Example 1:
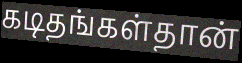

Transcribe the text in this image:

கடிதங்கள்தான்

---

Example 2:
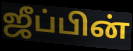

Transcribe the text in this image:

ஜீப்பின்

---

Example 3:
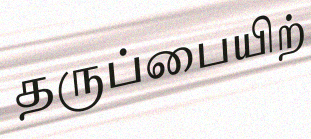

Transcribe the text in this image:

தருப்பையிற்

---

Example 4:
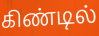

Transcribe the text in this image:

கிண்டில்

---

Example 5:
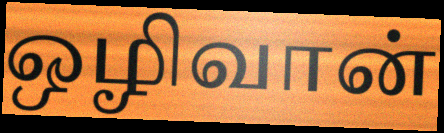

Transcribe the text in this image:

ஒழிவான்